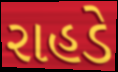
રાહડે